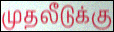
முதலீடுக்கு